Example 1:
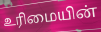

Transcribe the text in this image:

உரிமையின்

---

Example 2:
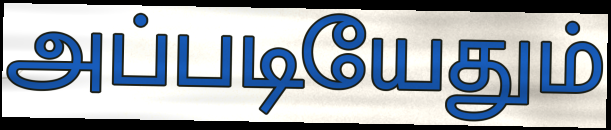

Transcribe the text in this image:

அப்படியேதும்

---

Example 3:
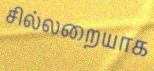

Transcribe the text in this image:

சில்லறையாக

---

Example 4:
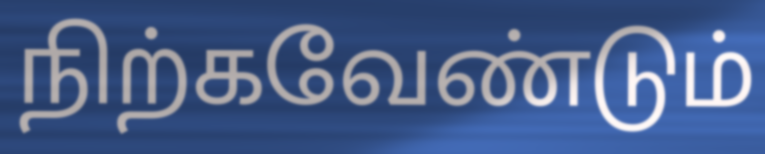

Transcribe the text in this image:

நிற்கவேண்டும்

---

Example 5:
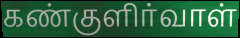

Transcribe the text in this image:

கண்குளிர்வாள்